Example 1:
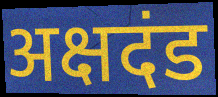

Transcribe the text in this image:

अक्षदंड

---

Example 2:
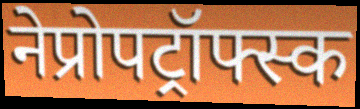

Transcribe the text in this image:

नेप्रोपट्रॉफ्स्क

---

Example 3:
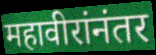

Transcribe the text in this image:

महावीरांनंतर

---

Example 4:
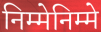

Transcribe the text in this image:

निम्मेनिम्मे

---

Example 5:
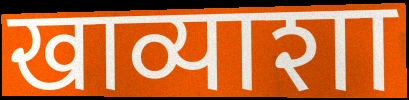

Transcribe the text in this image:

खाव्याशा